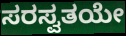
ಸರಸ್ವತಯೇ